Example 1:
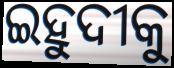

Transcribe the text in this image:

ଇହୁଦୀକୁ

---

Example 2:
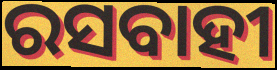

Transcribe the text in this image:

ରସବାହୀ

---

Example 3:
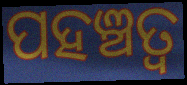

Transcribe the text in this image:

ପହଞ୍ଚତ୍ବ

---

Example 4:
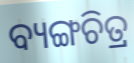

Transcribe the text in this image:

ବ୍ୟଙ୍ଗଚିତ୍ର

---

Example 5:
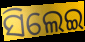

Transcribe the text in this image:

ସିଲେଇ